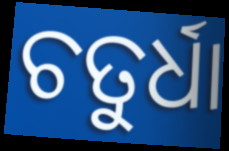
ଚତୁର୍ଧା